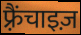
फ़्रैंचाइज़